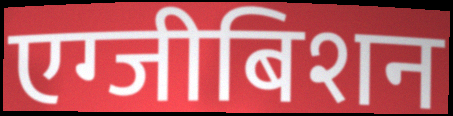
एग्जीबिशन